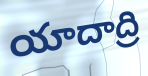
యాదాద్రి